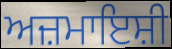
ਅਜ਼ਮਾਇਸ਼ੀ